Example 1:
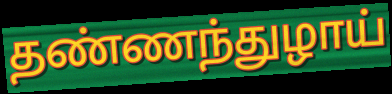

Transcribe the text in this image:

தண்ணந்துழாய்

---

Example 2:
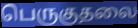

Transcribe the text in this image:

பெருகுதலை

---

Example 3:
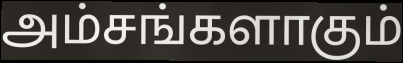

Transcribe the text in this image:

அம்சங்களாகும்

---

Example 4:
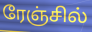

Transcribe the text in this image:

ரேஞ்சில்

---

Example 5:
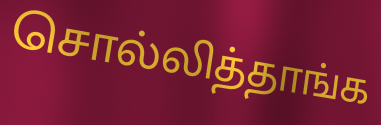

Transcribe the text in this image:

சொல்லித்தாங்க